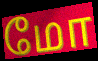
மோ